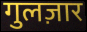
गुलज़ार